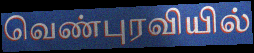
வெண்புரவியில்